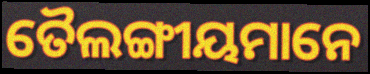
ତୈଲଙ୍ଗୀୟମାନେ